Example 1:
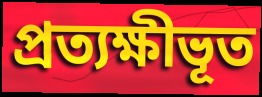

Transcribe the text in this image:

প্রত্যক্ষীভূত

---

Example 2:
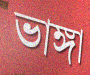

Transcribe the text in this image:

ভাঙ্গা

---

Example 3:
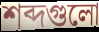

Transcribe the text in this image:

শব্দগুলো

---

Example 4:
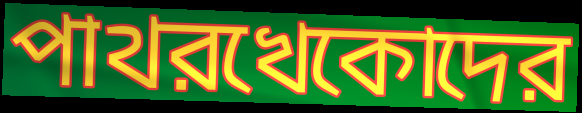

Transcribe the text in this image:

পাথরখেকোদের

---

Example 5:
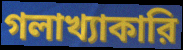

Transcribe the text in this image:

গলাখ্যাকারি